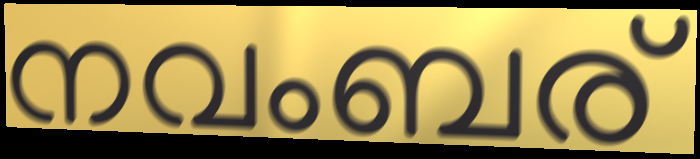
നവംബര്